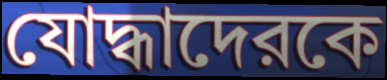
যোদ্ধাদেরকে